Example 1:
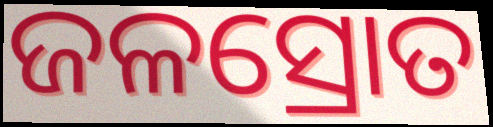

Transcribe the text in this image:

ଜଳସ୍ରୋତ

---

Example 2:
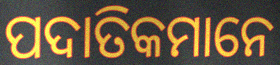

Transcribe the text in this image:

ପଦାତିକମାନେ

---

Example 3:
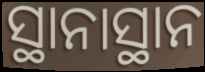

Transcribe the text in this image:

ସ୍ଥାନାସ୍ଥାନ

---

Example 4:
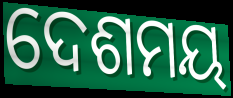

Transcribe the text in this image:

ଦେଶମୟ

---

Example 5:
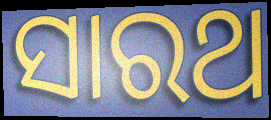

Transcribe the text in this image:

ସାରଥ